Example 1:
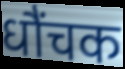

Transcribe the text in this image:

धौंचक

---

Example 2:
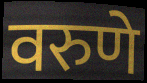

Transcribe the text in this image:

वरुणे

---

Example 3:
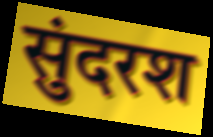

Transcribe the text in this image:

सुंदरश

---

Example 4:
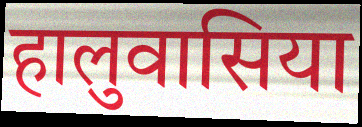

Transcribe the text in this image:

हालुवासिया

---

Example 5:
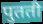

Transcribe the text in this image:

पुतती